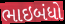
ભાઇબંધો